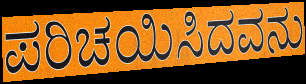
ಪರಿಚಯಿಸಿದವನು